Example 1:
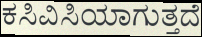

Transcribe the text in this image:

ಕಸಿವಿಸಿಯಾಗುತ್ತದೆ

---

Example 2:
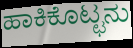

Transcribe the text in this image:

ಹಾಕಿಕೊಟ್ಟನು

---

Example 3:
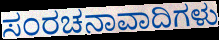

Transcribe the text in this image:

ಸಂರಚನಾವಾದಿಗಳು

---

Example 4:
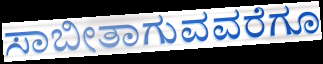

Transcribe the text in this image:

ಸಾಬೀತಾಗುವವರೆಗೂ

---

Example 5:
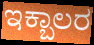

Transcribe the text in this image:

ಇಕ್ಬಾಲರ